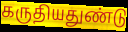
கருதியதுண்டு